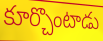
కూర్చొంటాడు